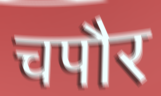
चपौर